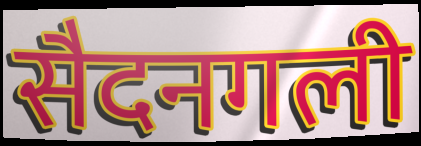
सैदनगली